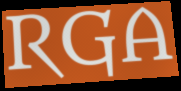
RGA